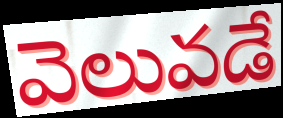
వెలువడే